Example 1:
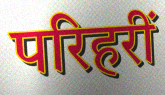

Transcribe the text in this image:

परिहरीं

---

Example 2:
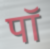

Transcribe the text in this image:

पॉ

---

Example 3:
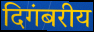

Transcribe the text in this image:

दिगंबरीय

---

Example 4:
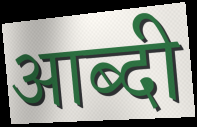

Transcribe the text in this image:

आब्दी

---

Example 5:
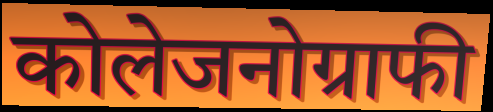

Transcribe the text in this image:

कोलेजनोग्राफी